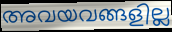
അവയവങ്ങളില്ല